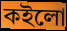
কইলো